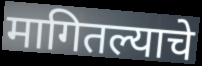
मागितल्याचे